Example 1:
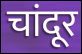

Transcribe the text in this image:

चांदूर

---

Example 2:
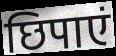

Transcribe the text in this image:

छिपाएं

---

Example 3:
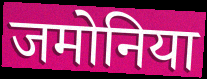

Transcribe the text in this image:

जमोनिया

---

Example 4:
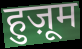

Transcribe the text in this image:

हुज़ूम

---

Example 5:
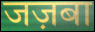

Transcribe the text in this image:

जज़बा